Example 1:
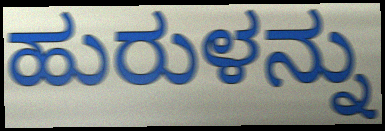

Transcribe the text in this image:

ಹುರುಳನ್ನು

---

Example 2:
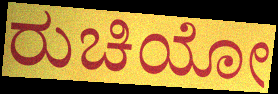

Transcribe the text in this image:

ರುಚಿಯೋ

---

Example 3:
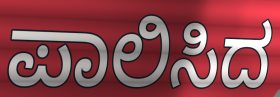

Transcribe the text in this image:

ಪಾಲಿಸಿದ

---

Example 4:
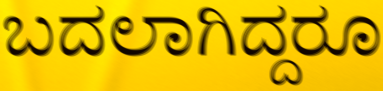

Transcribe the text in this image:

ಬದಲಾಗಿದ್ದರೂ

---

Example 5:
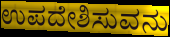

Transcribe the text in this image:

ಉಪದೇಶಿಸುವನು